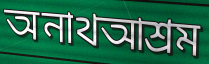
অনাথআশ্রম